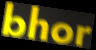
bhor